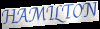
HAMILTON